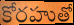
కోరహుతో